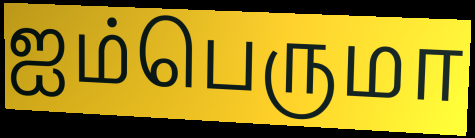
ஐம்பெருமா